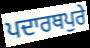
ਪਦਾਰਥਪੁਰੇ